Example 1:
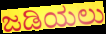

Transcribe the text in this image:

ಜಡಿಯಲು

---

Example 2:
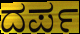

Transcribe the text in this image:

ದರ್ಪ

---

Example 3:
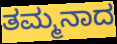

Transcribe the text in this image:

ತಮ್ಮನಾದ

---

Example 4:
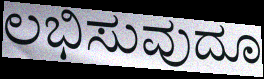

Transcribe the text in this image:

ಲಭಿಸುವುದೂ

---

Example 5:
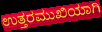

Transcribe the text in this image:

ಉತ್ತರಮುಖಿಯಾಗಿ